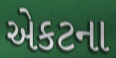
એકટના